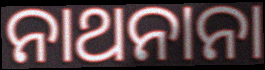
ନାଥନାନା